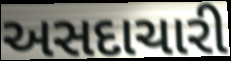
અસદાચારી